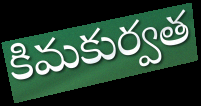
కిమకుర్వత